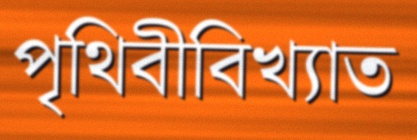
পৃথিবীবিখ্যাত